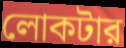
লোকটার